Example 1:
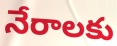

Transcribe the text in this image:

నేరాలకు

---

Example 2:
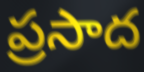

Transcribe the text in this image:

ప్రసాద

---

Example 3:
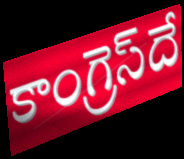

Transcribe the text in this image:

కాంగ్రెస్‌దే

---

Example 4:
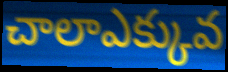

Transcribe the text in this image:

చాలాఎక్కువ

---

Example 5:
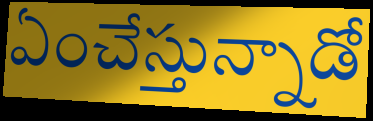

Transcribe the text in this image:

ఏంచేస్తున్నాడో